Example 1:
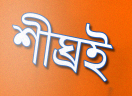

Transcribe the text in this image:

শীঘ্রই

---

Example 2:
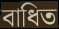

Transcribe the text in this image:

বাধিত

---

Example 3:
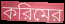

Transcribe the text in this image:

করিমের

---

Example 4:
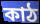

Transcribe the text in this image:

কাঠ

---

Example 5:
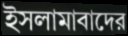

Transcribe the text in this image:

ইসলামাবাদের